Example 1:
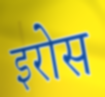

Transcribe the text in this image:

इरोस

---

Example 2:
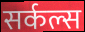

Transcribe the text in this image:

सर्कल्‍स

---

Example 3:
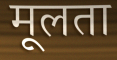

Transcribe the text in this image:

मूलता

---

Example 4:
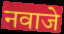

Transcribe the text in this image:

नवाजे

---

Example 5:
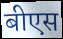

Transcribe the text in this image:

बीएस